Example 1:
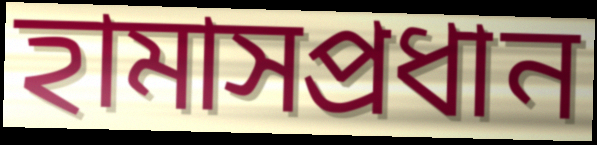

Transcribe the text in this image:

হামাসপ্রধান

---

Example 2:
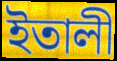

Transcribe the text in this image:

ইতালী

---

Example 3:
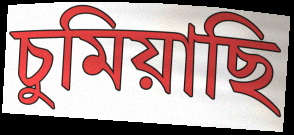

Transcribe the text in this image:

চুমিয়াছি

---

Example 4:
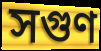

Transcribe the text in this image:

সগুণ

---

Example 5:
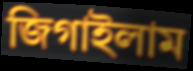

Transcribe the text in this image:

জিগাইলাম